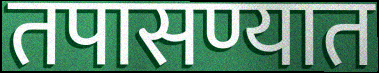
तपासण्यात